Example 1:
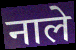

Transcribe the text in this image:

नाले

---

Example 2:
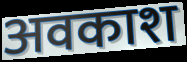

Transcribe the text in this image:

अवकाश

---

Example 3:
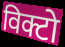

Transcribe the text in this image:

विक्टो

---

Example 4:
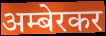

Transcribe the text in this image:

अम्बेरकर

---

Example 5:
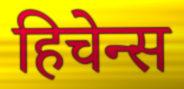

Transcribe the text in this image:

हिचेन्स